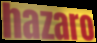
hazaro